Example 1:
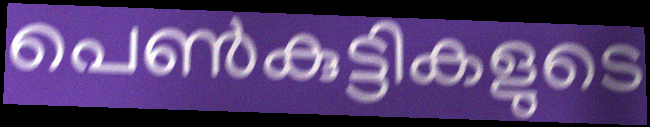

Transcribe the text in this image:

പെൺകുട്ടികളുടെ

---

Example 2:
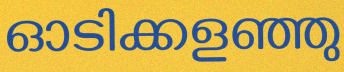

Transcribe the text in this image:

ഓടിക്കളഞ്ഞു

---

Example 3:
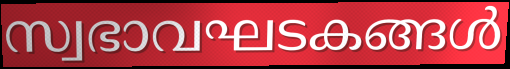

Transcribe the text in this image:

സ്വഭാവഘടകങ്ങൾ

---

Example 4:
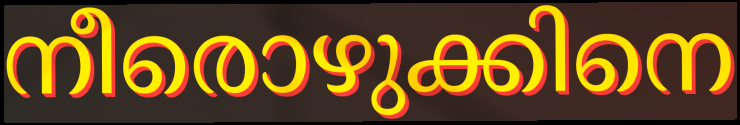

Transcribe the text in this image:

നീരൊഴുക്കിനെ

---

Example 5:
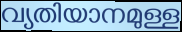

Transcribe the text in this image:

വ്യതിയാനമുള്ള